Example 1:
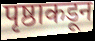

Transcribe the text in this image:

पृष्ठाकडून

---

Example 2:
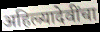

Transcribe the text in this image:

अहिल्यादेवींचा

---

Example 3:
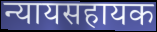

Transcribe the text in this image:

न्यायसहायक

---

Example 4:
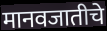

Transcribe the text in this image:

मानवजातीचे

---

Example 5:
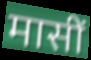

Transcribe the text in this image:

मासीं